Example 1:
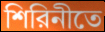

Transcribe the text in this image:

শিরিনীতে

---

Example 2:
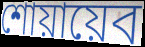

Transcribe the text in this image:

শোয়ায়েব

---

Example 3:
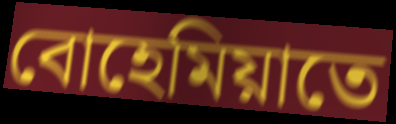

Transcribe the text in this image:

বোহেমিয়াতে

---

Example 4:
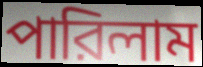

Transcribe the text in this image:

পারিলাম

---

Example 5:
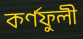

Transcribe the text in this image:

কর্ণফুলী